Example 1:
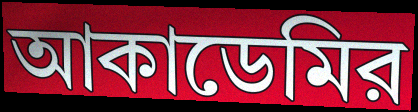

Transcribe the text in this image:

আকাডেমির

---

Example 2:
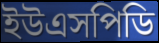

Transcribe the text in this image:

ইউএসপিডি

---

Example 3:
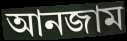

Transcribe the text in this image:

আনজাম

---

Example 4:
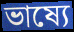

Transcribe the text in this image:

ভাষ্যে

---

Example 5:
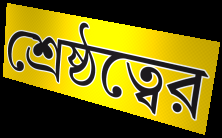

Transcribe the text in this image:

শ্রেষ্ঠত্বের